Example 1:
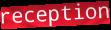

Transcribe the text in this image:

reception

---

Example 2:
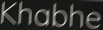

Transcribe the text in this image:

Khabhe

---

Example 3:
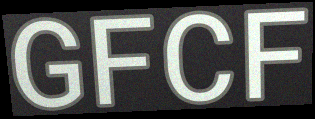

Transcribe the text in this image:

GFCF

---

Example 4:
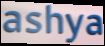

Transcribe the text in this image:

ashya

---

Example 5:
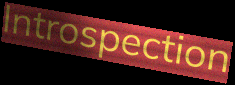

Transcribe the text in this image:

Introspection